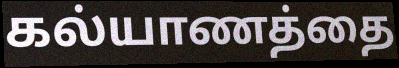
கல்யாணத்தை